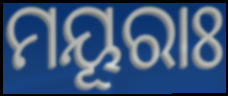
ମୟୂରାଃ